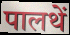
पालथें